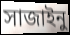
সাজাইনু